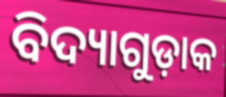
ବିଦ୍ୟାଗୁଡ଼ାକ